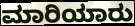
ಮಾರಿಯಾರು